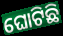
ଘୋଟିଛି